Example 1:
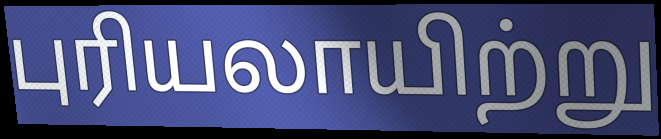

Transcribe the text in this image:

புரியலாயிற்று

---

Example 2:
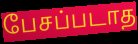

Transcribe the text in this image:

பேசப்படாத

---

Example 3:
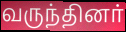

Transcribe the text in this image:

வருந்தினர்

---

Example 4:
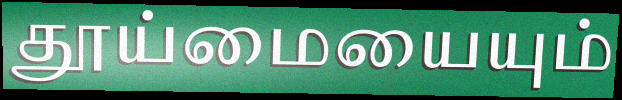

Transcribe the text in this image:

தூய்மையையும்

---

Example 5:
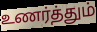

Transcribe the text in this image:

உணர்த்தும்